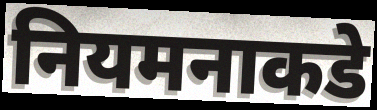
नियमनाकडे